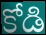
కోడి